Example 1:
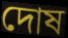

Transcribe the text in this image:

দোষ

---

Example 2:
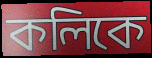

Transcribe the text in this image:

কলিকে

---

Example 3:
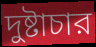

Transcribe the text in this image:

দুষ্টাচার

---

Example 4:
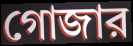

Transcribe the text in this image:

গোজার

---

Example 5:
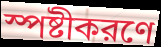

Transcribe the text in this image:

স্পষ্টীকরণে